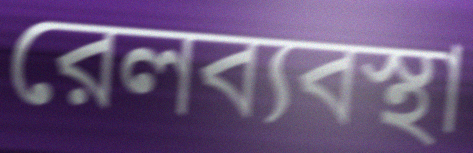
রেলব্যবস্থা